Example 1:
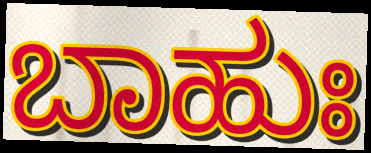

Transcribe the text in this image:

ಬಾಹುಃ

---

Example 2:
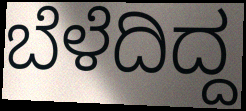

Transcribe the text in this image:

ಬೆಳೆದಿದ್ದ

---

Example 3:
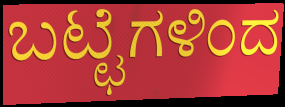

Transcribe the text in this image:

ಬಟ್ಟೆಗಳಿಂದ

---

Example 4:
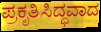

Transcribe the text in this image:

ಪ್ರಕೃತಿಸಿದ್ಧವಾದ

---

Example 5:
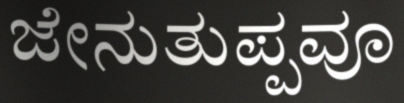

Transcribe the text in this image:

ಜೇನುತುಪ್ಪವೂ